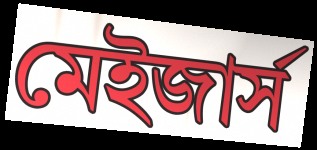
মেইজার্স